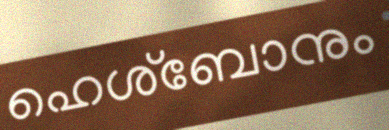
ഹെശ്ബോനും